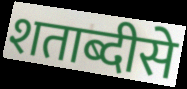
शताब्दीसे